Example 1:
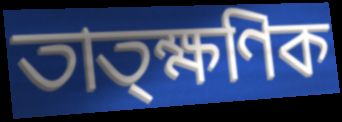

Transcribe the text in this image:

তাত্ক্ষণিক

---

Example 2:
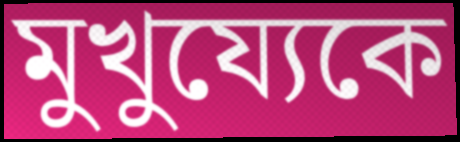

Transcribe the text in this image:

মুখুয্যেকে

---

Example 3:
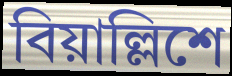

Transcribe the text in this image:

বিয়াল্লিশে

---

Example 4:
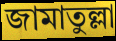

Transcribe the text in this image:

জামাতুল্লা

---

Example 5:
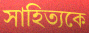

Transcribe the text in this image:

সাহিত্যকে